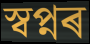
স্বপ্নৰ